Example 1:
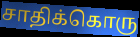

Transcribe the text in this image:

சாதிக்கொரு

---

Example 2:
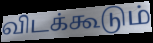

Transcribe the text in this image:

விடக்கூடும்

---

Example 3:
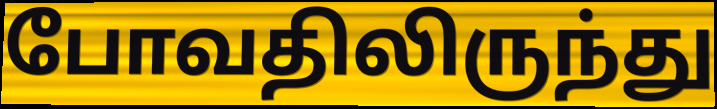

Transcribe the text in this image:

போவதிலிருந்து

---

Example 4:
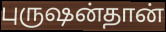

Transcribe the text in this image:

புருஷன்தான்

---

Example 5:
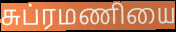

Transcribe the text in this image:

சுப்ரமணியை